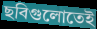
ছবিগুলোতেই